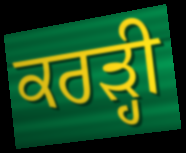
ਕਰੜ੍ਹੀ